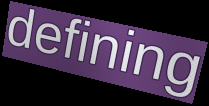
defining